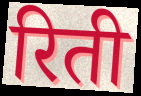
रिती